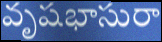
వృషభాసురా